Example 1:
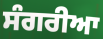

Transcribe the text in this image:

ਸੰਗਰੀਆ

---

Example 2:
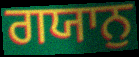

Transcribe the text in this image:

ਗਯਾਨੁ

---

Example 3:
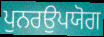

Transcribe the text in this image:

ਪੁਨਰਉਪਯੋਗ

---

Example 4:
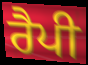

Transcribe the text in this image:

ਰੈਪੀ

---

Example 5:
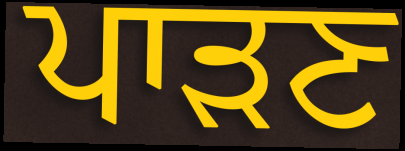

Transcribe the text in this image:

ਪਾੜਣ